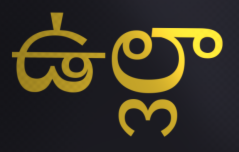
ఉల్లా